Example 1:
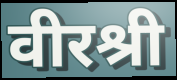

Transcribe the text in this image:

वीरश्री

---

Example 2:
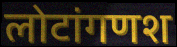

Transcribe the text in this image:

लोटांगणश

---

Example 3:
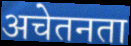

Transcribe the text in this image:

अचेतनता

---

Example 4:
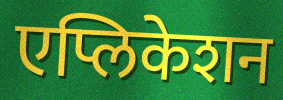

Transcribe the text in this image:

एप्लिकेशन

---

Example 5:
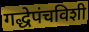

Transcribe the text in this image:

गद्धेपंचविशी